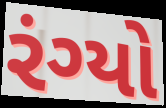
રંગ્યો